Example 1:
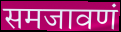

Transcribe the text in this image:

समजावणं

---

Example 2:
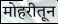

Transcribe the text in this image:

मोहरीतून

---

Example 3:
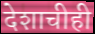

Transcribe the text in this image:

देशाचीही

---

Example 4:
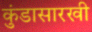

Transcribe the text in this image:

कुंडासारखी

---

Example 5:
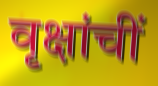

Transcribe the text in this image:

वृक्षांचीं